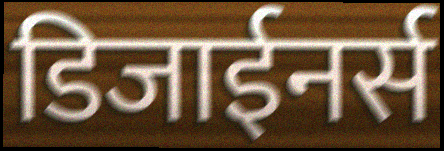
डिजाईनर्स